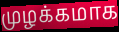
முழக்கமாக